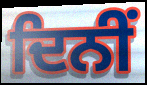
ਦਿਨੀਂ